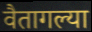
वैतागल्या